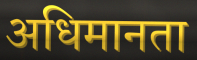
अधिमानता